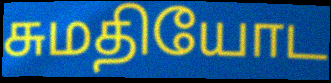
சுமதியோட